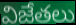
విజేతలు